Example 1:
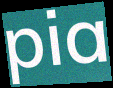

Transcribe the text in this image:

pia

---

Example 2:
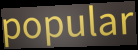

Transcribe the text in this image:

popular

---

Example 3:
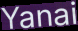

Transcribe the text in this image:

Yanai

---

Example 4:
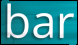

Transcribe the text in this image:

bar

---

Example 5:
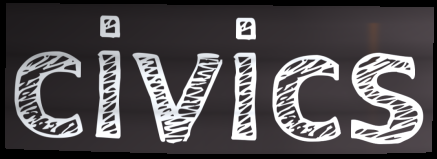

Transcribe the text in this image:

civics